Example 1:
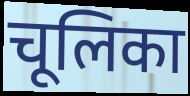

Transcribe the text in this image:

चूलिका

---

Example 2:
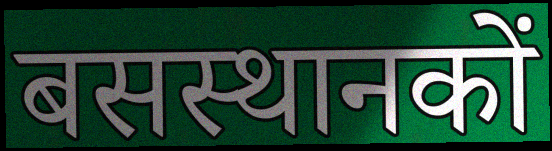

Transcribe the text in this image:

बसस्थानकों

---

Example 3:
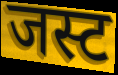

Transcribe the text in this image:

जस्ट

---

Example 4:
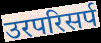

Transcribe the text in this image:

उरपरिसर्प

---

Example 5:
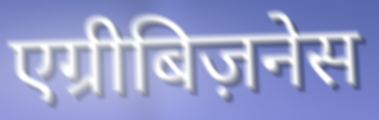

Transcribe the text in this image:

एग्रीबिज़नेस